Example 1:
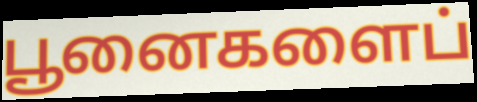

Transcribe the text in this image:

பூனைகளைப்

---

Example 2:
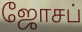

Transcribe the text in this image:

ஜோசப்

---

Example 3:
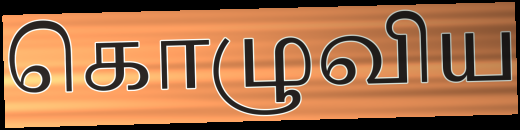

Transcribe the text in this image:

கொழுவிய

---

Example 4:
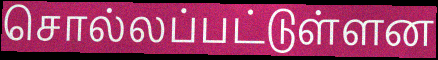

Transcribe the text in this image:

சொல்லப்பட்டுள்ளன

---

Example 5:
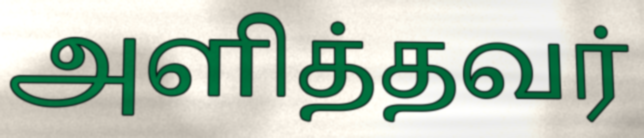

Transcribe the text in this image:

அளித்தவர்